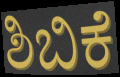
ಶಿಬಿಕೆ